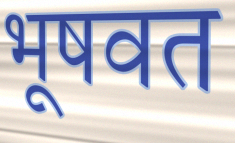
भूषवत